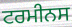
ਟਰਮੀਨਸ